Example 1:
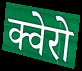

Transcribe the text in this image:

क्वेरो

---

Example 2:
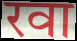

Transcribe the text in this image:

रवा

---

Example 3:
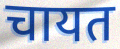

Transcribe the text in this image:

चायत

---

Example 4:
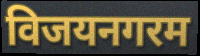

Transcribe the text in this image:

विजयनगरम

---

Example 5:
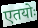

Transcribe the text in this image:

एतयोः